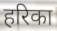
हरिका